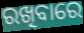
ରଖିବାରେ